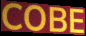
COBE